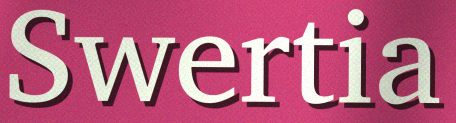
Swertia